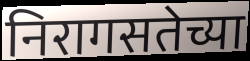
निरागसतेच्या